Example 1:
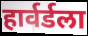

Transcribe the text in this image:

हार्वर्डला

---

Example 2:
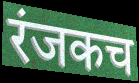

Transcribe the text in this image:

रंजकच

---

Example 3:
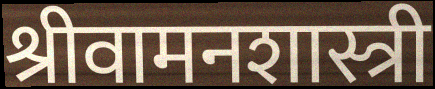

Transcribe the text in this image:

श्रीवामनशास्त्री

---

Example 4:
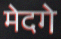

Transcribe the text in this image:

मेदगे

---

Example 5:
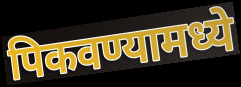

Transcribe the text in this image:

पिकवण्यामध्ये